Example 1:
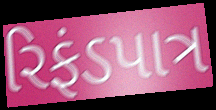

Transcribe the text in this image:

રિફંડપાત્ર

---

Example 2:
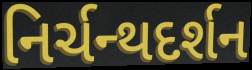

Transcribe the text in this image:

નિર્ચન્થદર્શન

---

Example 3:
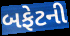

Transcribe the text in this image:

બફેટની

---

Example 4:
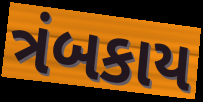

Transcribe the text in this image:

ત્રંબકાય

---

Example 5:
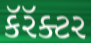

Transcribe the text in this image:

કૅરૅક્ટર